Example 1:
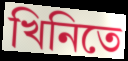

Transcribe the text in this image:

খিনিতে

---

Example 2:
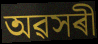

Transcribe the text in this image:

অৱসৰী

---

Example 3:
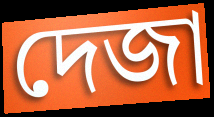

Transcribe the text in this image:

দেজা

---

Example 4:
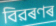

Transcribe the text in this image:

বিৱৰণৰ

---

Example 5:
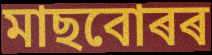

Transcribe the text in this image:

মাছবোৰৰ